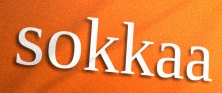
sokkaa